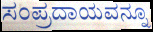
ಸಂಪ್ರದಾಯವನ್ನೂ